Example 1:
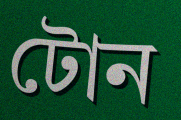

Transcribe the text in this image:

টোন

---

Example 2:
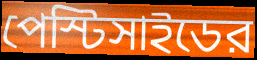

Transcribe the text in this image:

পেস্টিসাইডের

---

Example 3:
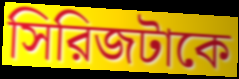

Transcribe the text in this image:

সিরিজটাকে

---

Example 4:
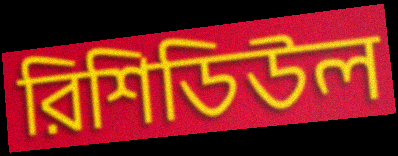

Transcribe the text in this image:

রিশিডিউল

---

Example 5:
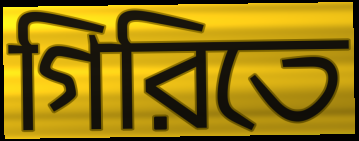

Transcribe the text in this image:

গিরিতে